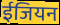
ईजियन